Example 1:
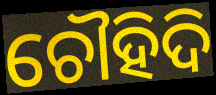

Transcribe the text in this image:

ଚୌହିଦି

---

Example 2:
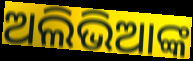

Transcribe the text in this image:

ଅଲିଭିଆଙ୍କ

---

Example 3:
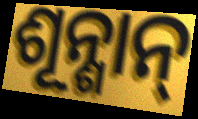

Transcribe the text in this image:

ଶୂନ୍ଶାନ୍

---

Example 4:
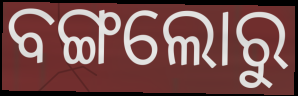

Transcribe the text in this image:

ବଙ୍ଗଲୋରୁ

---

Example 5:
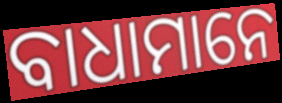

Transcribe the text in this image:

ବାଧାମାନେ